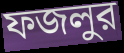
ফজলুর